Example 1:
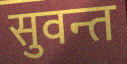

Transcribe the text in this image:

सुवन्त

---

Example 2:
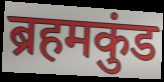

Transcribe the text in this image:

ब्रहमकुंड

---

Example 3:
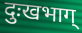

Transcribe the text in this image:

दुःखभाग्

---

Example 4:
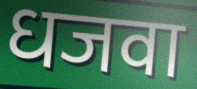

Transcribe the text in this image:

धजवा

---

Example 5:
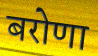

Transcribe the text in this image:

बरोणा